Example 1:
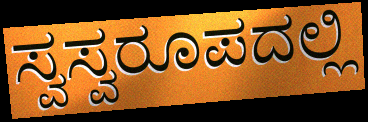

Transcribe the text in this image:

ಸ್ವಸ್ವರೂಪದಲ್ಲಿ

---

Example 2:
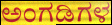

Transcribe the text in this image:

ಅಂಗಡಿಗಳ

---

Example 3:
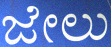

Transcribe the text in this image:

ಜೇಲು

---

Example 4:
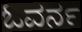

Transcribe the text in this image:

ಓವರ್ನ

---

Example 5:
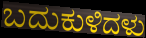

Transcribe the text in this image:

ಬದುಕುಳಿದಳು